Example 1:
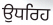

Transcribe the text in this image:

ਉਧਰਿਹ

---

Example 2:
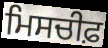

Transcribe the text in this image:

ਮਿਸਚੀਫ਼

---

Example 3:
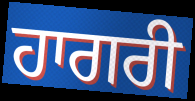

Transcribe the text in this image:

ਹਾਗਰੀ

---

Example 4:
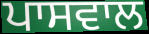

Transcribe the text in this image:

ਪਾਸਵਾਲ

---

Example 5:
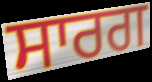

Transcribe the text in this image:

ਸਾਰਗ